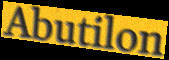
Abutilon